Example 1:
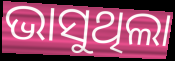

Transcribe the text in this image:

ଭାସୁଥିଲା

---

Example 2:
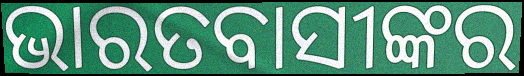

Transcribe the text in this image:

ଭାରତବାସୀଙ୍କର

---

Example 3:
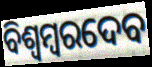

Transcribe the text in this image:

ବିଶ୍ୱମ୍ବରଦେବ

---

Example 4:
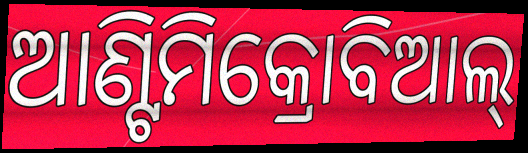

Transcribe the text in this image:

ଆଣ୍ଟିମିକ୍ରୋବିଆଲ୍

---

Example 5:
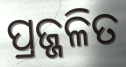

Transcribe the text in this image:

ପ୍ରଜ୍ଜଳିତ